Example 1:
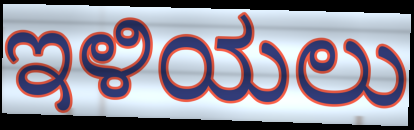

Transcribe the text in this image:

ಇಳಿಯಲು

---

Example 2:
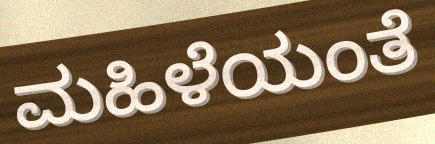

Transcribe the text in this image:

ಮಹಿಳೆಯಂತೆ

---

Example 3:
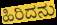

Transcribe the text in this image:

ಹಿರಿದನು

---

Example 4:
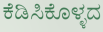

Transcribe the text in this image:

ಕೆಡಿಸಿಕೊಳ್ಳದ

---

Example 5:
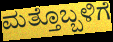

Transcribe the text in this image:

ಮತ್ತೊಬ್ಬಳಿಗೆ